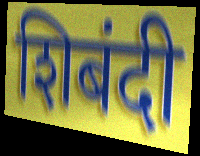
शिबंदी